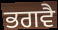
ਭਗਵੈ